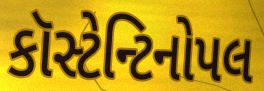
કૉસ્ટેન્ટિનોપલ